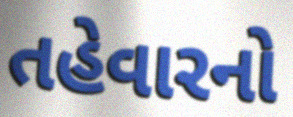
તહેવારનો